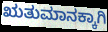
ಋತುಮಾನಕ್ಕಾಗಿ